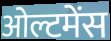
ओल्टमेंस